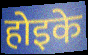
होइके